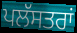
ਪਲੱਸਤਰਾਂ